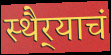
स्थैर्याचं